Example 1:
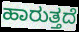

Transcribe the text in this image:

ಹಾರುತ್ತದೆ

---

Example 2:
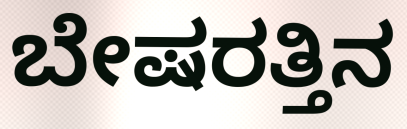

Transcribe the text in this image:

ಬೇಷರತ್ತಿನ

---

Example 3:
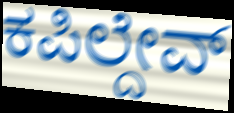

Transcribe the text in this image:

ಕಪಿಲ್ದೇವ್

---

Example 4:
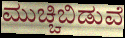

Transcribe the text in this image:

ಮುಚ್ಚಿಬಿಡುವೆ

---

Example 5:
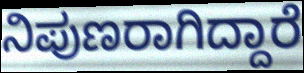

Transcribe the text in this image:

ನಿಪುಣರಾಗಿದ್ದಾರೆ